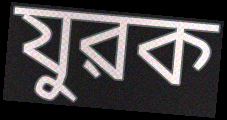
যুৱক